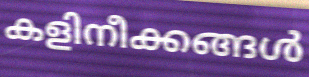
കളിനീക്കങ്ങൾ